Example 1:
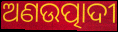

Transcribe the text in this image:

ଅଣଉତ୍ପାଦୀ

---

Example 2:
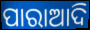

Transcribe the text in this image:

ପାରାଆଦି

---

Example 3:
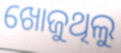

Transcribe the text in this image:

ଖୋଜୁଥିଲୁ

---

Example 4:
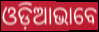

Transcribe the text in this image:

ଓଡ଼ିଆଭାବେ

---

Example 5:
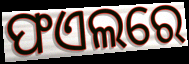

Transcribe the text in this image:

ଫଏଲରେ